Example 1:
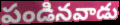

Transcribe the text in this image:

పండినవాడు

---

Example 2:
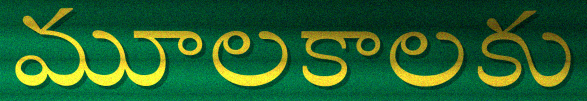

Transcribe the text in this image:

మూలకాలకు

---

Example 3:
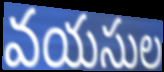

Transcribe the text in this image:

వయసుల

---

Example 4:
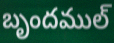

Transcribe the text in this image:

బృందముల్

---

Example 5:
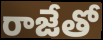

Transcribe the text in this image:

రాజేతో